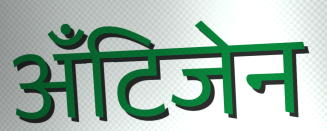
अँटिजेन